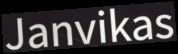
Janvikas